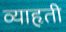
व्याहृती